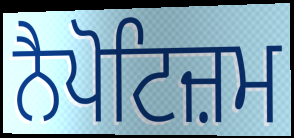
ਨੈਪੋਟਿਜ਼ਮ